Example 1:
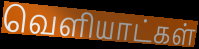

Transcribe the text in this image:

வெளியாட்கள்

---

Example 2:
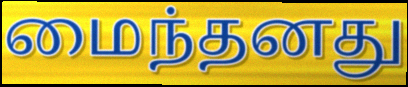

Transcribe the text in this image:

மைந்தனது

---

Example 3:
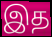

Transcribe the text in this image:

இத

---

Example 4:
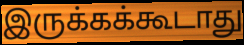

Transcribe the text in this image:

இருக்கக்கூடாது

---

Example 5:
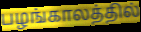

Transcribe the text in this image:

பழங்காலத்தில்